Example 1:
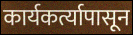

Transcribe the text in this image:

कार्यकर्त्यापासून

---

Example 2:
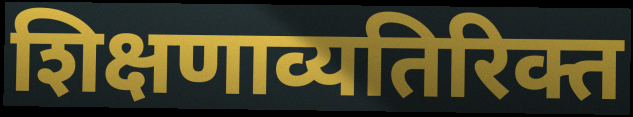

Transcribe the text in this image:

शिक्षणाव्यतिरिक्त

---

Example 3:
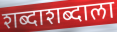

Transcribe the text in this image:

शब्दाशब्दाला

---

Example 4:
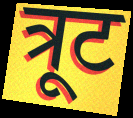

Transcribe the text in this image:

त्रूट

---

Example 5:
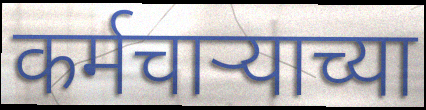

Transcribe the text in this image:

कर्मचाऱ्याच्या